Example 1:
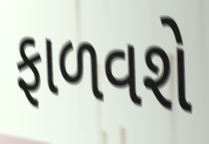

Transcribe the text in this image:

ફાળવશે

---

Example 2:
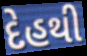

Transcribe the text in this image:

દેહથી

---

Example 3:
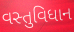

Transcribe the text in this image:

વસ્તુવિધાન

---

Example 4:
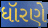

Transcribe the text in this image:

ધૉરણે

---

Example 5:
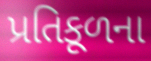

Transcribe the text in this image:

પ્રતિકૂળના